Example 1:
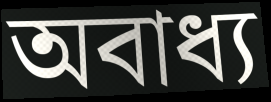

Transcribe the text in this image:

অবাধ্য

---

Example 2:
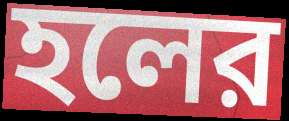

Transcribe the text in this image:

হলের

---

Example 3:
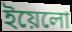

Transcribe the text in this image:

ইয়েলো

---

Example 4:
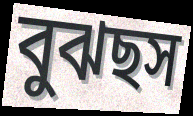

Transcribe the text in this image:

বুঝছস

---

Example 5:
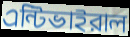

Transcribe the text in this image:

এন্টিভাইরাল